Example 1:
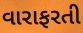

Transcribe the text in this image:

વારાફરતી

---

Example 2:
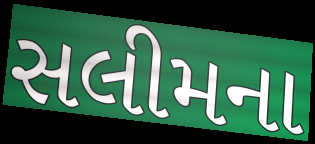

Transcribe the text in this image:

સલીમના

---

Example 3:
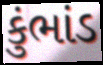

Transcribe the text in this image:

કુંભાંડ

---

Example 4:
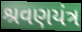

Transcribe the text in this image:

શ્રવણયંત્ર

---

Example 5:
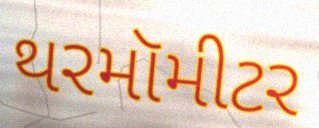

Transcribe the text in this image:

થરમૉમીટર